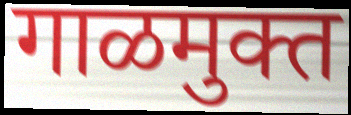
गाळमुक्त